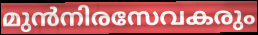
മുൻനിരസേവകരും